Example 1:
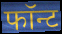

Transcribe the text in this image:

फॉन्ट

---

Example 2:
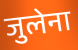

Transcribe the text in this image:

जुलेना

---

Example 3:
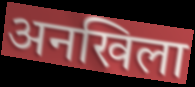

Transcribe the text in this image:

अनखिला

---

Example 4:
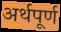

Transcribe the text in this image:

अर्थपूर्ण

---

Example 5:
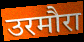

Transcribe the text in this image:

उरमौरा